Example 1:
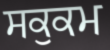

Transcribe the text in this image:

ਸਕੁਕਮ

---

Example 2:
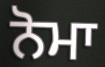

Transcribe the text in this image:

ਨੋਮਾ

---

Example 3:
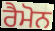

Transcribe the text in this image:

ਰੈਮੋਨ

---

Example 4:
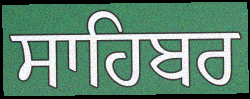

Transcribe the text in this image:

ਸਾਹਿਬਰ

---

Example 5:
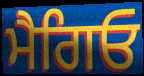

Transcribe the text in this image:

ਮੈਗਿਓ